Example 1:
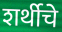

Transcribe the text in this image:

शर्थीचे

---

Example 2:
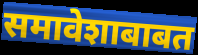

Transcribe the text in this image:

समावेशाबाबत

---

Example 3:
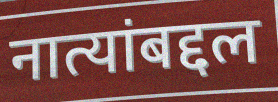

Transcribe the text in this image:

नात्यांबद्दल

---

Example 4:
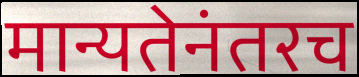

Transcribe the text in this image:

मान्यतेनंतरच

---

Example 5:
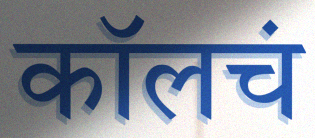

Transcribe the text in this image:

कॉलचं